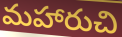
మహారుచి